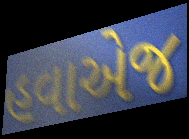
હવાએજ